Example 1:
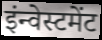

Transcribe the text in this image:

इंन्वेस्टमेंट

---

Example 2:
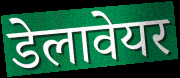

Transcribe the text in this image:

डेलावेयर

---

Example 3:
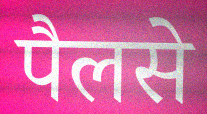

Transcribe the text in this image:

पैलसे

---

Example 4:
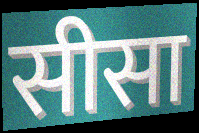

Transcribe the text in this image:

सीसा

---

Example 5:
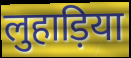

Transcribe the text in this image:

लुहाड़िया